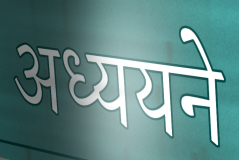
अध्ययने